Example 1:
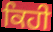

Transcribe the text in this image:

ਕਿਹੀ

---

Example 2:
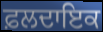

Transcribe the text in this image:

ਫ਼ਲਦਾਇਕ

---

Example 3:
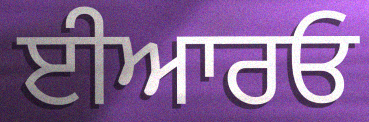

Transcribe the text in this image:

ਈਆਰਓ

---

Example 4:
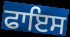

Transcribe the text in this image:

ਫਾਇਸ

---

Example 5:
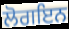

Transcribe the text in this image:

ਲੋਗਇਨ